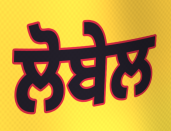
ਲੋਬੇਲ